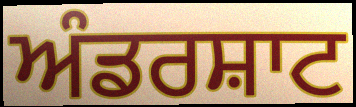
ਅੰਡਰਸ਼ਾਟ